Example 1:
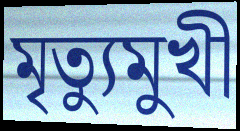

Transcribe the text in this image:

মৃত্যুমুখী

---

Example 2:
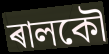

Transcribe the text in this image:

ৰালকৌ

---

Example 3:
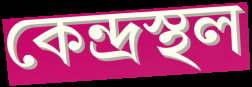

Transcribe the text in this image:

কেন্দ্ৰস্থল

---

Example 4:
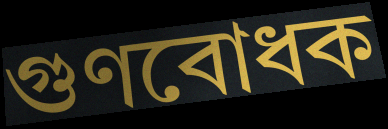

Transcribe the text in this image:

গুণবোধক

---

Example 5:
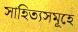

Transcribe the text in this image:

সাহিত্যসমূহে